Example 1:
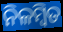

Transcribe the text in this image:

ନିଳମ୍ବିତ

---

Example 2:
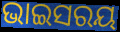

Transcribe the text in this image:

ଭାଇସରୟ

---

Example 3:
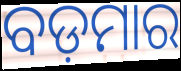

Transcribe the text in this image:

ବଡ଼ମାର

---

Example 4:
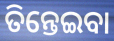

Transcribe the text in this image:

ତିନ୍ତେଇବା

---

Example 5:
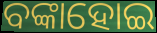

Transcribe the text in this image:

ବଙ୍କାହୋଇ